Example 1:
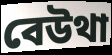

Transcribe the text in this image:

বেউথা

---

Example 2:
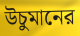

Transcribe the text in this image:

উচুমানের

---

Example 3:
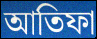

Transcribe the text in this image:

আতিফা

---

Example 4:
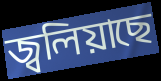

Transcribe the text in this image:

জ্বলিয়াছে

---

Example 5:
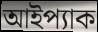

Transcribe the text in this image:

আইপ্যাক